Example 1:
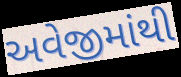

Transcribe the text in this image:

અવેજીમાંથી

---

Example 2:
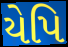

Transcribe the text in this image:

યેપિ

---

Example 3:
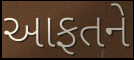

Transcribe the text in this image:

આફતને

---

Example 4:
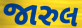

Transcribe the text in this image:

જારુલ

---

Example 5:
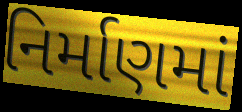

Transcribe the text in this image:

નિર્માણમાં